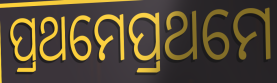
ପ୍ରଥମେପ୍ରଥମେ